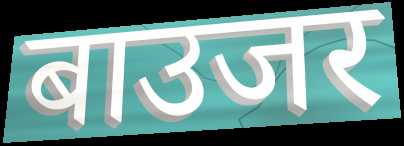
बाउजर